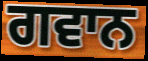
ਗਵਾਨ